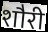
शौरी